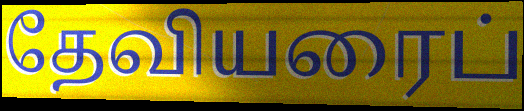
தேவியரைப்